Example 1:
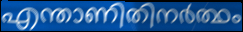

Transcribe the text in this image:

എന്താണിതിനർത്ഥം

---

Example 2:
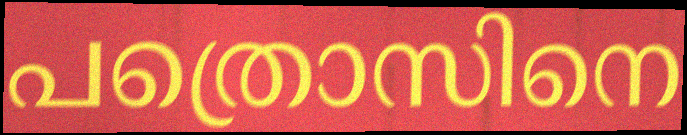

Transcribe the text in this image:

പത്രൊസിനെ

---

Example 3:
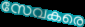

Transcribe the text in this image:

സേവകരെ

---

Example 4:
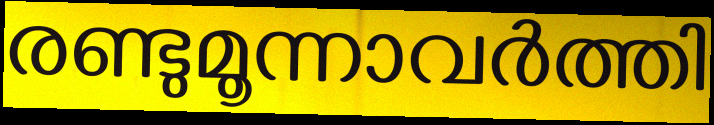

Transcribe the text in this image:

രണ്ടുമൂന്നാവർത്തി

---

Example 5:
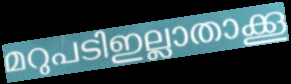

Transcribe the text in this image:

മറുപടിഇല്ലാതാക്കൂ